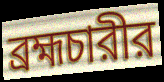
ব্রহ্মচারীর